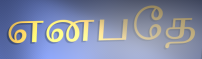
எனபதே